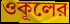
ওকূলের